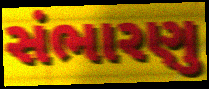
સંભારણુ